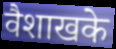
वैशाखके